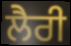
ਲੈਰੀ